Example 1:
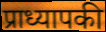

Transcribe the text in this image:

प्राध्यापकी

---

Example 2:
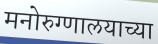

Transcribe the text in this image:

मनोरुग्णालयाच्या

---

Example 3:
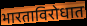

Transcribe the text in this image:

भारताविरोधात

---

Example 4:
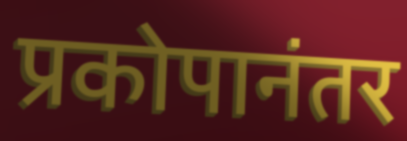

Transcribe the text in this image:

प्रकोपानंतर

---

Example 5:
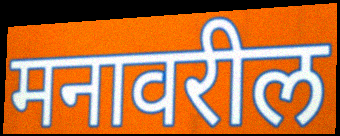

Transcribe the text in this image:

मनावरील